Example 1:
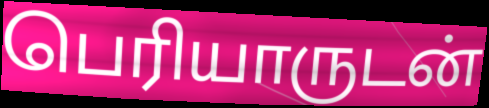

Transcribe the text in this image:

பெரியாருடன்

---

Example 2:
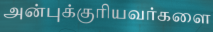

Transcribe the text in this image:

அன்புக்குரியவர்களை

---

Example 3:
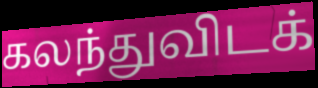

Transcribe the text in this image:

கலந்துவிடக்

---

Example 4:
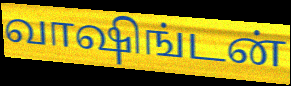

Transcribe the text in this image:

வாஷிங்டன்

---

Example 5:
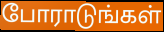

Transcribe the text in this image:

போராடுங்கள்